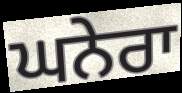
ਘਨੇਰਾ